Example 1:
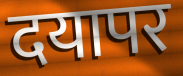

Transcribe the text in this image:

दयापर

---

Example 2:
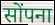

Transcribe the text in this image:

सोंपना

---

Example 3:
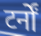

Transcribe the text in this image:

टर्नों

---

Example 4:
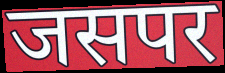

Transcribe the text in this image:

जसपर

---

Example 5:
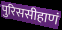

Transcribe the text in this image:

पुरिससीहाणं